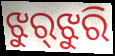
ଝୁର୍‌ଝୁରି